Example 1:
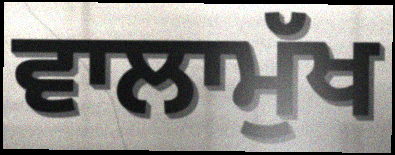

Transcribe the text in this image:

ਵਾਲਾਮੁੱਖ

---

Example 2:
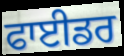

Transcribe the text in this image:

ਫਾਈਡਰ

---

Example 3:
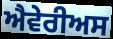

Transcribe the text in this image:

ਐਵੇਰੀਅਸ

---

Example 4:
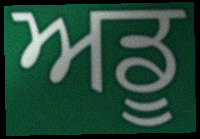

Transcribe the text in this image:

ਅਡੂ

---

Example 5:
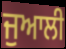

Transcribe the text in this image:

ਜੁਆਲੀ